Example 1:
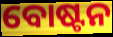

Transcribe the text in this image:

ବୋଷ୍ଟନ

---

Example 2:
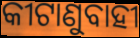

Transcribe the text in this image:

କୀଟାଣୁବାହୀ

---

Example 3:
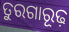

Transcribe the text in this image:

ତୁରଗାରୂଢ଼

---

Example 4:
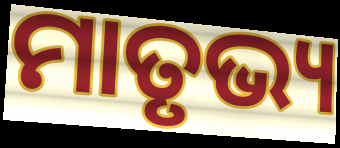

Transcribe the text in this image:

ମାତୃଭ୍ୟ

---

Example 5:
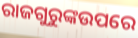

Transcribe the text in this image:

ରାଜଗୁରୁଙ୍କଉପରେ